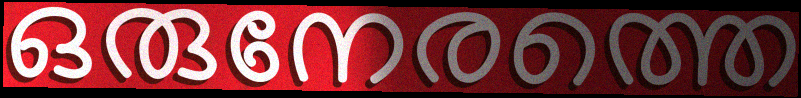
ഒരുനേരത്തെ